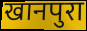
खानपुरा